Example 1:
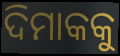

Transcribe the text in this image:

ଦିମାକକୁ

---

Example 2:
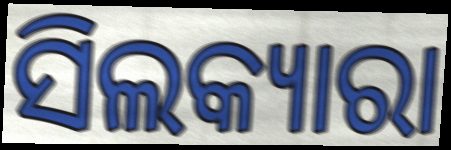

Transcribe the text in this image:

ସିଲକ୍ୟାରା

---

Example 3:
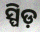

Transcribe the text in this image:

ସ୍ପିଡ଼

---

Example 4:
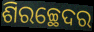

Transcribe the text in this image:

ଶିରଚ୍ଛେଦର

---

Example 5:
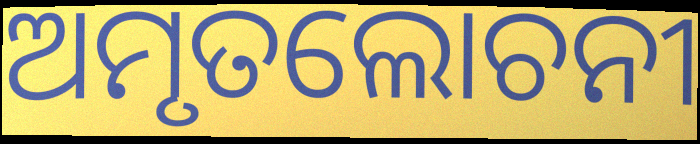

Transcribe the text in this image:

ଅମୃତଲୋଚନୀ